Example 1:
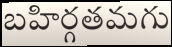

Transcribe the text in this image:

బహిర్గతమగు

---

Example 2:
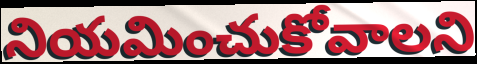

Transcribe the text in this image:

నియమించుకోవాలని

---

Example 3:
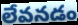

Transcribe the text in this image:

లేవనడం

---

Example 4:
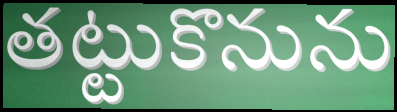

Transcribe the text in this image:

తట్టుకొనును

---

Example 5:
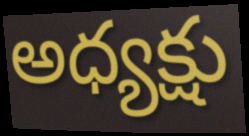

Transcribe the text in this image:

అధ్యక్షు